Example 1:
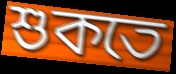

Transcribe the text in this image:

শুকতে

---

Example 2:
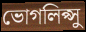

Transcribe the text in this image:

ভোগলিপ্সু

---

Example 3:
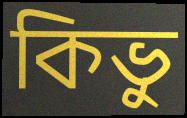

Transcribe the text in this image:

কিভু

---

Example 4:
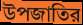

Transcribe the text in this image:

উপজাতির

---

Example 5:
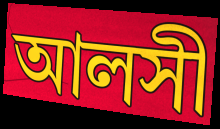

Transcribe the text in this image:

আলসী